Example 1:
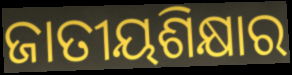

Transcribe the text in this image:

ଜାତୀୟଶିକ୍ଷାର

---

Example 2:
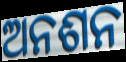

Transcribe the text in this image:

ଅନଶନ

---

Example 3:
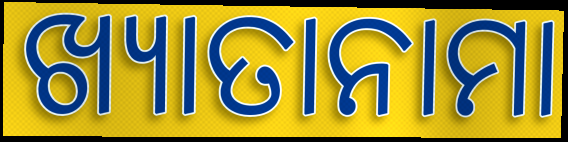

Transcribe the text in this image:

ଖ୍ୟାତାନାମା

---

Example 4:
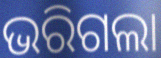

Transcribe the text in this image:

ଭରିଗଲା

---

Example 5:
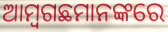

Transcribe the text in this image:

ଆମ୍ବଗଛମାନଙ୍କରେ